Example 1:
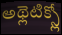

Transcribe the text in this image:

అథ్లెటిక్స్లో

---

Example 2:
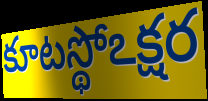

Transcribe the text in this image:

కూటస్థోఽక్షర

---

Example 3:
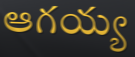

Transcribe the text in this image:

ఆగయ్య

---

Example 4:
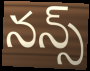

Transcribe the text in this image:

నన్స్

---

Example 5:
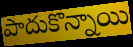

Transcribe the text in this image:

పాదుకొన్నాయి